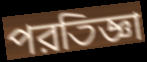
পরতিজ্ঞা